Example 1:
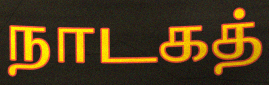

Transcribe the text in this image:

நாடகத்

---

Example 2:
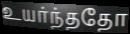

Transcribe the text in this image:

உயர்ந்ததோ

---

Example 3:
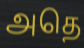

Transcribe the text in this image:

அதெ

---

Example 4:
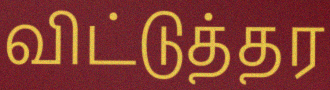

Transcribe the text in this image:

விட்டுத்தர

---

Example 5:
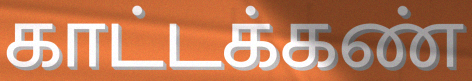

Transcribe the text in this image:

காட்டக்கண்